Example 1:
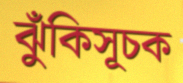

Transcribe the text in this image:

ঝুঁকিসূচক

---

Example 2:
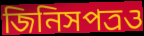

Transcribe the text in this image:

জিনিসপত্রও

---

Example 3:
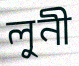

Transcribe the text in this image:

লুনী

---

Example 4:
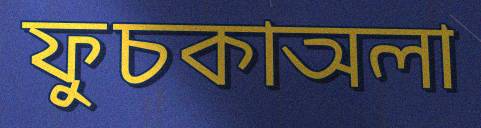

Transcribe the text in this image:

ফুচকাঅলা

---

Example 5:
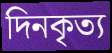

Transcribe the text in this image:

দিনকৃত্য